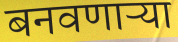
बनवणाऱ्या